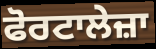
ਫੋਰਟਾਲੇਜ਼ਾ